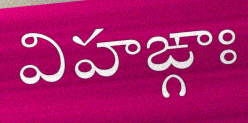
విహఙ్గాః